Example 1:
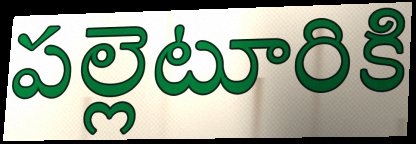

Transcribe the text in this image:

పల్లెటూరికి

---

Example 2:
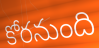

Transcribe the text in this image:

కోరనుంది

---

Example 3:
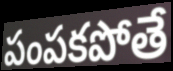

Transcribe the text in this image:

పంపకపోతే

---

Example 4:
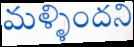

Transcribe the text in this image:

మళ్ళిందని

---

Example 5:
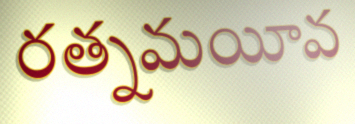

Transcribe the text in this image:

రత్నమయీవ